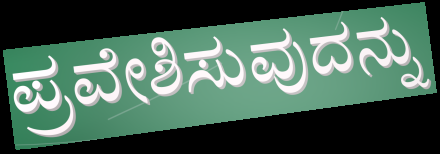
ಪ್ರವೇಶಿಸುವುದನ್ನು